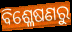
ବିଶ୍ଳେଷଣରୁ